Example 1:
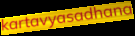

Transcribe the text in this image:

kartavyasadhana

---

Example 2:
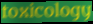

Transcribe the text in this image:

toxicology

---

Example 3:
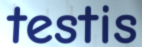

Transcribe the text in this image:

testis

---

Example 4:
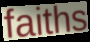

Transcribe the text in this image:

faiths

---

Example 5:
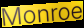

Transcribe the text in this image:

Monroe